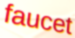
faucet